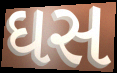
ઘસ